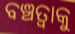
ବଞ୍ଚତ୍ବାକୁ